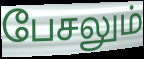
பேசலும்